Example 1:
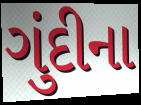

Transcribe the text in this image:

ગુંદીના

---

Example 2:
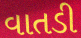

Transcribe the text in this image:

વાતડી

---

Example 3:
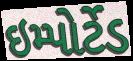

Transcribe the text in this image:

ઇમ્પોર્ટેડ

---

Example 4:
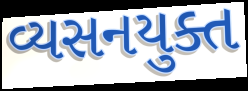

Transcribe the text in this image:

વ્યસનયુક્ત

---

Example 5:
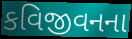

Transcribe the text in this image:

કવિજીવનના